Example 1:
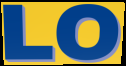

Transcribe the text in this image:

LO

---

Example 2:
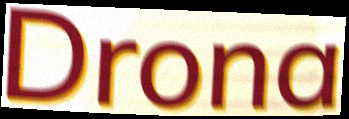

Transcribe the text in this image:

Drona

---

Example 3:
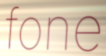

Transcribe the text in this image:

fone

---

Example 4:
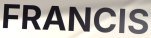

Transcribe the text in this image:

FRANCIS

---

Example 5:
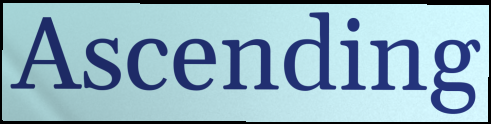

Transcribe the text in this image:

Ascending